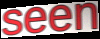
seen